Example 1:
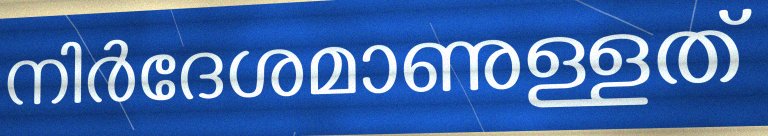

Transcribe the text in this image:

നിർദേശമാണുള്ളത്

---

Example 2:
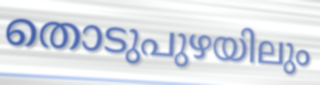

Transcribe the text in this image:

തൊടുപുഴയിലും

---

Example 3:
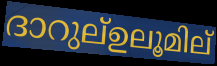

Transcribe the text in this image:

ദാറുല്ഉലൂമില്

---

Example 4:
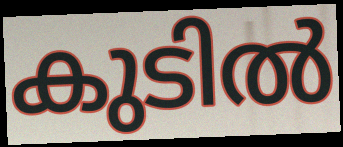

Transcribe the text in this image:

കുടിൽ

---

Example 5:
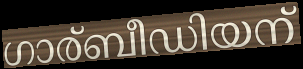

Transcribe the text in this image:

ഗാര്ബീഡിയന്